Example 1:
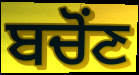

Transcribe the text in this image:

ਬਚੋਂਣ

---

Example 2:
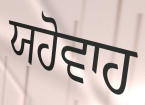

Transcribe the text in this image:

ਯਹੋਵਾਹ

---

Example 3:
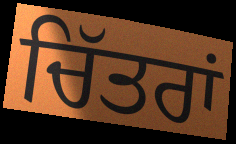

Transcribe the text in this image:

ਚਿੱਤਰਾਂ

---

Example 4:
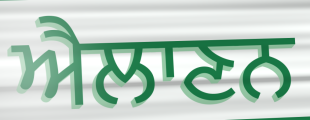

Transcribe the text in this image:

ਐਲਾਣਨ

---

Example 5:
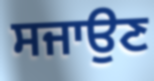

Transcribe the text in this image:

ਸਜਾਉਣ